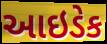
આઇડેક